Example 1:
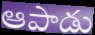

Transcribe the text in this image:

ఆపాడు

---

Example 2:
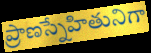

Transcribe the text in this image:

ప్రాణస్నేహితునిగా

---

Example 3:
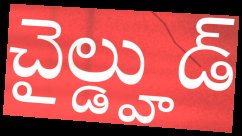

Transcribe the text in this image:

చైల్డ్హుడ్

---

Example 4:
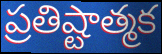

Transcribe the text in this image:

ప్రతిష్టాత్మక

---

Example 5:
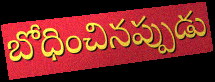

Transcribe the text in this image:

బోధించినప్పుడు